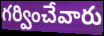
గర్వించేవారు